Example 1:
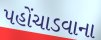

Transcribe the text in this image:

પહોંચાડવાના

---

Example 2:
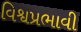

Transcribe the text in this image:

વિશ્વપ્રભાવી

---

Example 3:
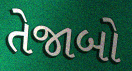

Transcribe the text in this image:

તેજાબો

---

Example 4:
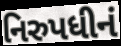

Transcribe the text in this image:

નિરુપધીનં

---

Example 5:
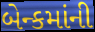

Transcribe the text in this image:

બેન્કમાંની